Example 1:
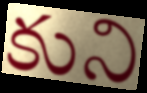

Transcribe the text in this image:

కుని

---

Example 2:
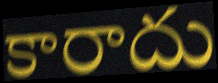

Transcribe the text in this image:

కారాదు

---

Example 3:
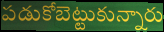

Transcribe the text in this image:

పడుకోబెట్టుకున్నారు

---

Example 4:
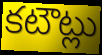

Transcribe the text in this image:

కటౌట్లు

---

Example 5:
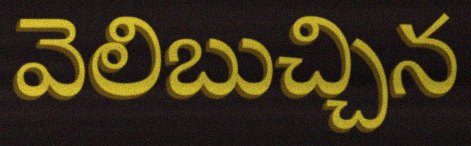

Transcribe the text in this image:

వెలిబుచ్చిన